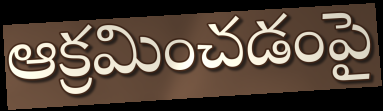
ఆక్రమించడంపై